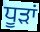
ਧੂੜਾਂ